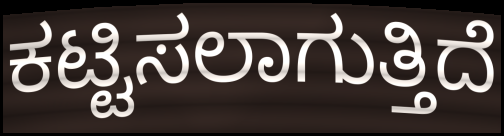
ಕಟ್ಟಿಸಲಾಗುತ್ತಿದೆ